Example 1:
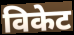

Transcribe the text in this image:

विकेट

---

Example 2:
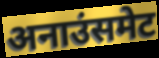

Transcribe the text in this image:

अनाउंसमेट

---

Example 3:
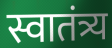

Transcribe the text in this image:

स्वातंत्र्य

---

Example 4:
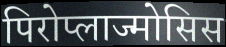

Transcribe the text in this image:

पिरोप्लाज्मोसिस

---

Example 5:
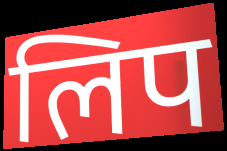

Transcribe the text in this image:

लिप